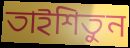
তাইশিতুন